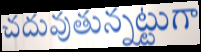
చదువుతున్నట్టుగా